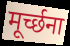
मूर्च्छना